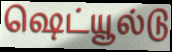
ஷெட்யூல்டு